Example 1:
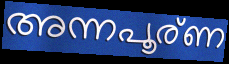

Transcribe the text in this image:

അന്നപൂര്ണ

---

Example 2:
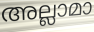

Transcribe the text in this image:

അല്ലാമാ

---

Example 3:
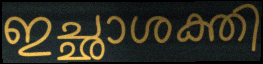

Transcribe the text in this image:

ഇച്ഛാശക്തി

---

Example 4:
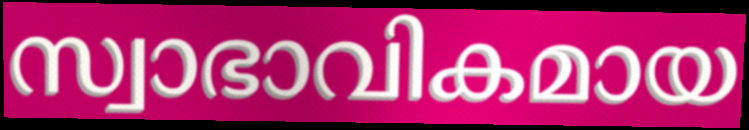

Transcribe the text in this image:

സ്വാഭാവികമായ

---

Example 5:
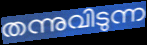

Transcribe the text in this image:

തന്നുവിടുന്ന